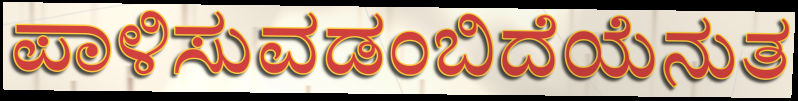
ಪಾಳಿಸುವಡಂಬಿದೆಯೆನುತ